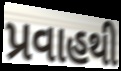
પ્રવાહથી